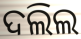
ଦଲିଲ